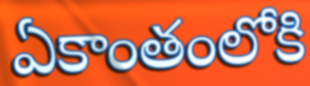
ఏకాంతంలోకి